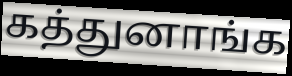
கத்துனாங்க